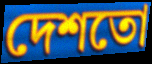
দেশতো